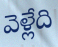
వెళ్లేది